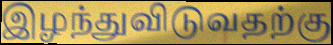
இழந்துவிடுவதற்கு